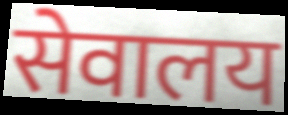
सेवालय